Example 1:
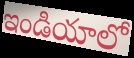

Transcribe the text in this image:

ఇండియాలో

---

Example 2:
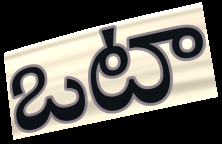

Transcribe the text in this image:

ఒటా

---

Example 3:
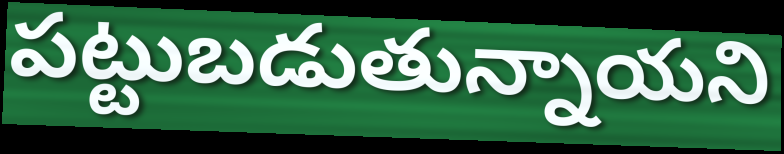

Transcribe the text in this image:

పట్టుబడుతున్నాయని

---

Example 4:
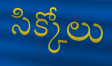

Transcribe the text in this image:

సిక్కోలు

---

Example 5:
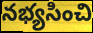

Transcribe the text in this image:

నభ్యసించి